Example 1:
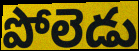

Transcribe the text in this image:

పోలెడు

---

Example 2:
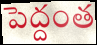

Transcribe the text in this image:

పెద్దంత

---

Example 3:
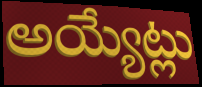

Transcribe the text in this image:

అయ్యేట్లు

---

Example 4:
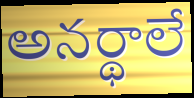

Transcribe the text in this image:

అనర్థాలే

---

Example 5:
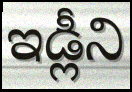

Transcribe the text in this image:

ఇడ్లీని